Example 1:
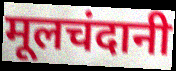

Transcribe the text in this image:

मूलचंदानी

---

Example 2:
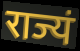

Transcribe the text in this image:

राज्यं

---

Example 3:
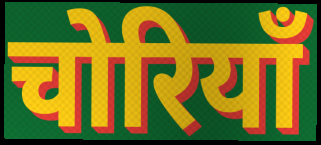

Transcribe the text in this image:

चोरियाँ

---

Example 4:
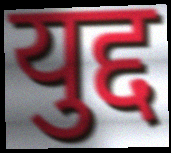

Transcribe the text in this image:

युद्द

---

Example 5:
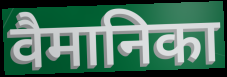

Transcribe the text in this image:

वैमानिका